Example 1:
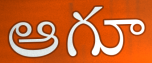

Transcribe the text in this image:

ఆగూ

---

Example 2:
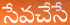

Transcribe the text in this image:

సేవచేసే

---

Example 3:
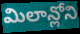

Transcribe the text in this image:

మిలాన్లోని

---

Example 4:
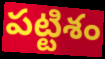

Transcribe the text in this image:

పట్టిశం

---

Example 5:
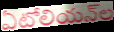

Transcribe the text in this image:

ఏటోలియన్‌ల